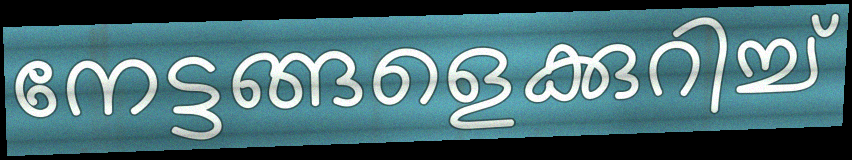
നേട്ടങ്ങളെക്കുറിച്ച്